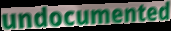
undocumented